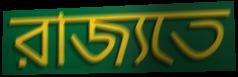
রাজ্যতে